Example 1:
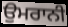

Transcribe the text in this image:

ਉਮਰਾਨੀ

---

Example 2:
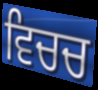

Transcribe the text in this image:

ਵਿਚਚ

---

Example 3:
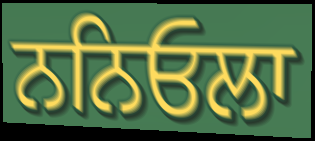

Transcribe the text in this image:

ਨਨਿਓਲਾ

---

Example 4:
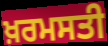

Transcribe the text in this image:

ਖ਼ਰਮਸਤੀ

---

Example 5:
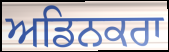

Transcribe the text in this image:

ਅਡਿਨਕਰਾ